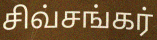
சிவ்சங்கர்